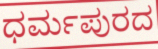
ಧರ್ಮಪುರದ